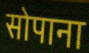
सोपाना